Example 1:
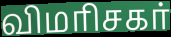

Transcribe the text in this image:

விமரிசகர்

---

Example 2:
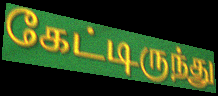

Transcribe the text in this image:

கேட்டிருந்து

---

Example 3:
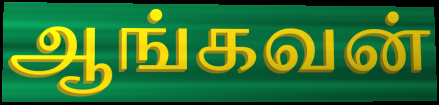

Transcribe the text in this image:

ஆங்கவன்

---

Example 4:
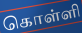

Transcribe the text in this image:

கொள்ளி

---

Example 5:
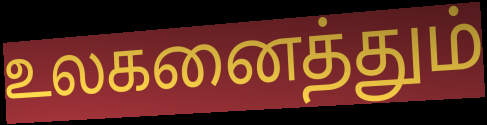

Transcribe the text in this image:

உலகனைத்தும்